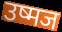
उष्मज